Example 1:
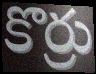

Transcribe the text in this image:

కొర్రు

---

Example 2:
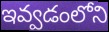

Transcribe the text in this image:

ఇవ్వడంలోని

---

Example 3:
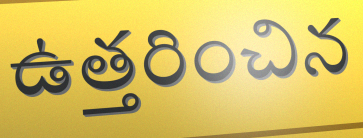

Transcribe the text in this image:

ఉత్తరించిన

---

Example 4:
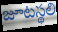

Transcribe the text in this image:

జూటస్థలి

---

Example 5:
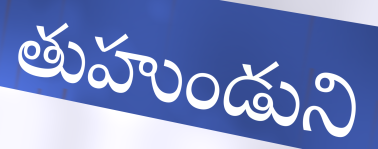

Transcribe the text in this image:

తుహుండుని